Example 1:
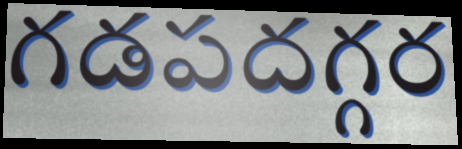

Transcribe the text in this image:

గడపదగ్గర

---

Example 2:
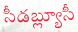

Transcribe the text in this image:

సీడబ్ల్యూసీ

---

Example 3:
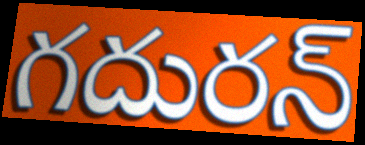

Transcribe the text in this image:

గదురన్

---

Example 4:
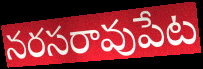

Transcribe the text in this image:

నరసరావుపేట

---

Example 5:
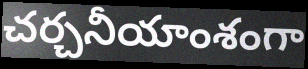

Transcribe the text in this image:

చర్చనీయాంశంగా